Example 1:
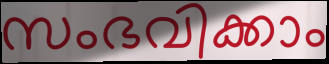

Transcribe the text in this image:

സംഭവിക്കാം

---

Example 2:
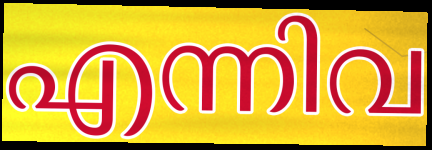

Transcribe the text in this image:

എന്നിവ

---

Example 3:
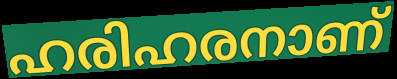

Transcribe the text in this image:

ഹരിഹരനാണ്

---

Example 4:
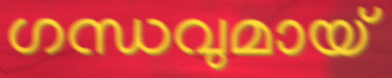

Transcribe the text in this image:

ഗന്ധവുമായ്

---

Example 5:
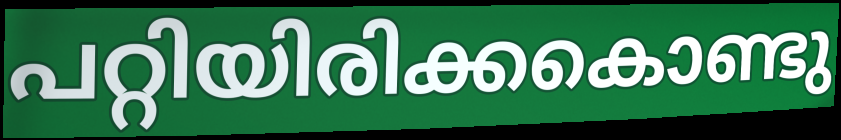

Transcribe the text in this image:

പറ്റിയിരിക്കകൊണ്ടു